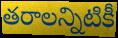
తరాలన్నిటికీ